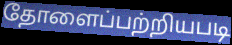
தோளைப்பற்றியபடி